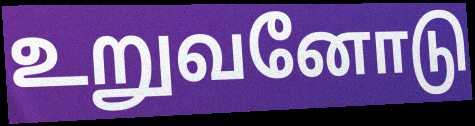
உறுவனோடு